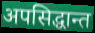
अपसिद्धान्त